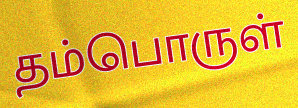
தம்பொருள்